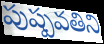
పుష్పవతిని